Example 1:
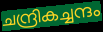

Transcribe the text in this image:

ചന്ദ്രികച്ചന്ദം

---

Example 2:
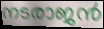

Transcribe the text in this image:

നടരാജൻ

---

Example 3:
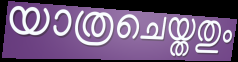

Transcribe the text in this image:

യാത്രചെയ്തതും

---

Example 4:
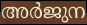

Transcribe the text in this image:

അർജുന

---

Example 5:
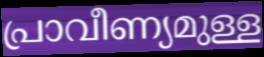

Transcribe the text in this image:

പ്രാവീണ്യമുള്ള